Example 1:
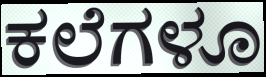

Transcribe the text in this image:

ಕಲೆಗಳೂ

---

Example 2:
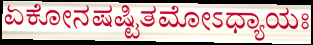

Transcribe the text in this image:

ಏಕೋನಷಷ್ಟಿತಮೋಽಧ್ಯಾಯಃ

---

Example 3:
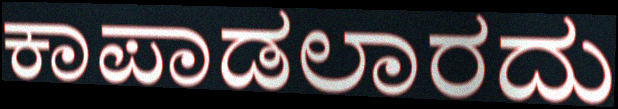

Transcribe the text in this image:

ಕಾಪಾಡಲಾರದು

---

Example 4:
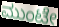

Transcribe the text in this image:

ಮುಂಟೇ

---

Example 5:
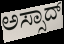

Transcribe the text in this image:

ಅಸ್ಸಾದ್